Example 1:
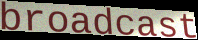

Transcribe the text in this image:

broadcast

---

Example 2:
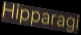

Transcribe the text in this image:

Hipparagi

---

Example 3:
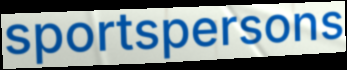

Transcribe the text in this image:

sportspersons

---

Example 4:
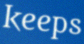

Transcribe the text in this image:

keeps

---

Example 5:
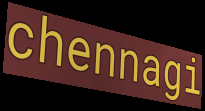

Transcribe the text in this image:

chennagi